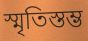
স্মৃতিস্তম্ভ